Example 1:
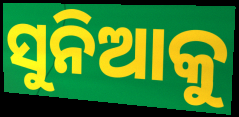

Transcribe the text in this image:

ସୁନିଆକୁ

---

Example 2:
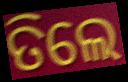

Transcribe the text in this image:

ତିଲେ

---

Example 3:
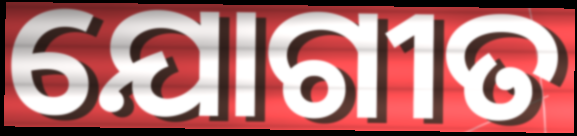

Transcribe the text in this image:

ଯୋଗୀତ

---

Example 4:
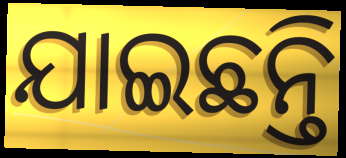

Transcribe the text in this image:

ଯାଇଛନ୍ତି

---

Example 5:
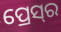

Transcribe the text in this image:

ପ୍ରେସ୍‌ର